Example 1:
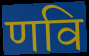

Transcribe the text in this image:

णवि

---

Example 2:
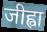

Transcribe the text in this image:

जीह्वा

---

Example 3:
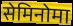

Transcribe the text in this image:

सेमिनोमा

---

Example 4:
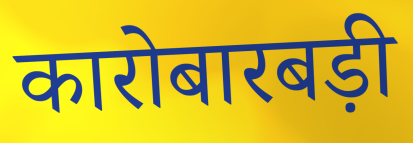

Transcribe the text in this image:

कारोबारबड़ी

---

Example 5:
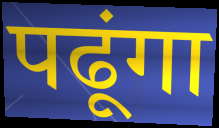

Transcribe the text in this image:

पढूंगा